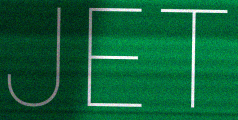
JET